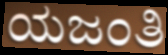
ಯಜಂತಿ